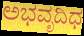
ಅಭವೃದಿಧ